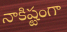
నాకిష్టంగా